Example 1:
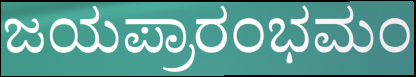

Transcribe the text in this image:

ಜಯಪ್ರಾರಂಭಮಂ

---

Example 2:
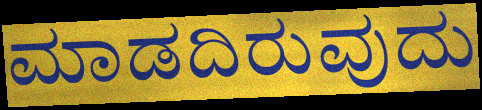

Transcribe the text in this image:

ಮಾಡದಿರುವುದು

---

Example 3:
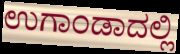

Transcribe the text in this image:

ಉಗಾಂಡಾದಲ್ಲಿ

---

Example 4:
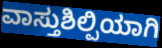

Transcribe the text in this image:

ವಾಸ್ತುಶಿಲ್ಪಿಯಾಗಿ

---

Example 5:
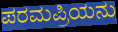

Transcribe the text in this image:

ಪರಮಪ್ರಿಯನು